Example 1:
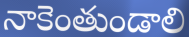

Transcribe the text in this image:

నాకెంతుండాలి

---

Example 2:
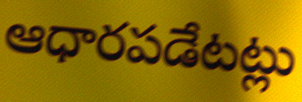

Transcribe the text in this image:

ఆధారపడేటట్లు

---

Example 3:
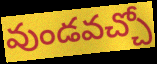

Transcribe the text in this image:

వుండవచ్చో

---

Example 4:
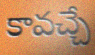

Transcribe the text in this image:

కావచ్చే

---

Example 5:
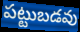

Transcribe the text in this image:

పట్టుబడవు